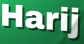
Harij